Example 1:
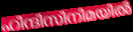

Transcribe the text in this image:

ഹിന്ദിസിനിമയിൽ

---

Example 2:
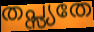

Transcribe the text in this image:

തപ്സ്യതേ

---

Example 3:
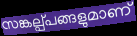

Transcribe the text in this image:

സങ്കല്പ്പങ്ങളുമാണ്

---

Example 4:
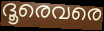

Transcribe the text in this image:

ദൂരെവരെ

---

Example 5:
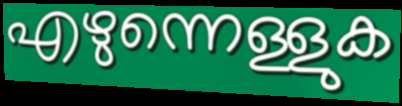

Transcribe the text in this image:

എഴുന്നെള്ളുക